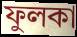
ফুলকা